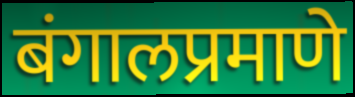
बंगालप्रमाणे